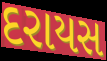
દરાયસ